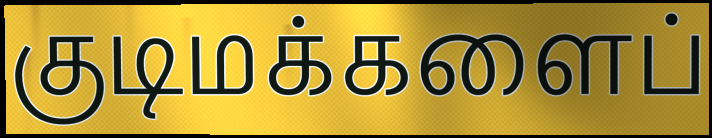
குடிமக்களைப்